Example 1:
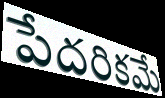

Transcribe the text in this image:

పేదరికమే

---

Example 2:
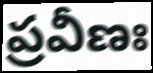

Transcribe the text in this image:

ప్రవీణః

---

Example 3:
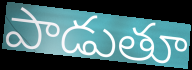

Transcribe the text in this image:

పాడుతూ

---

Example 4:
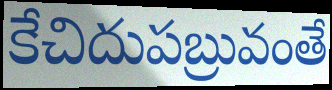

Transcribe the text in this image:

కేచిదుపబ్రువంతే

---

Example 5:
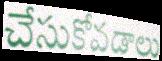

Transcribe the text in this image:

చేసుకోవడాలు